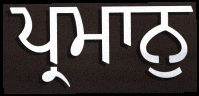
ਪ੍ਰਮਾਨੁ